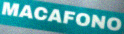
MACAFONO